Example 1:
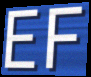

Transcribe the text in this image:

EF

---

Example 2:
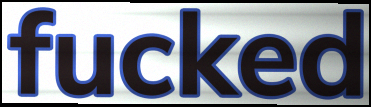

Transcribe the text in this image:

fucked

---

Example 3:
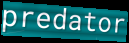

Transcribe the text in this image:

predator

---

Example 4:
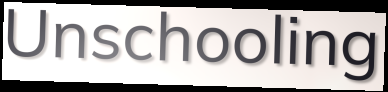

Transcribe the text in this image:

Unschooling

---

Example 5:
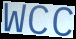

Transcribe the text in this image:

WCC